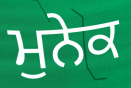
ਮੁਨੇਕ